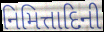
નિમિત્તાદિની